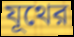
যূথের